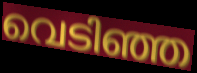
വെടിഞ്ഞ